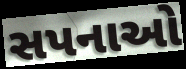
સપનાઓ